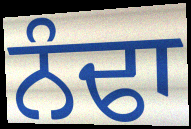
ਨੰਢਾ